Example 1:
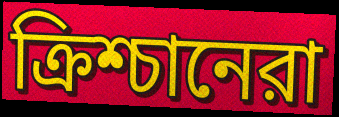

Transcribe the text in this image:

ক্রিশ্চানেরা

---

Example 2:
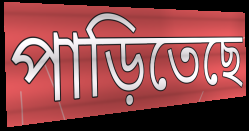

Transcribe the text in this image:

পাড়িতেছে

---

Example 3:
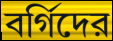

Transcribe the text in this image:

বর্গিদের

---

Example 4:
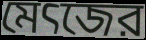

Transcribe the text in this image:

মেৎজের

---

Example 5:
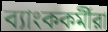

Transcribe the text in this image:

ব্যাংককর্মীরা